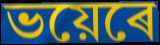
ভয়েৰে